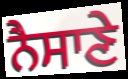
ਨੈਸਾਣੇ